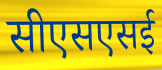
सीएसएसई